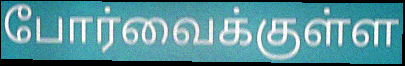
போர்வைக்குள்ள